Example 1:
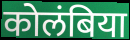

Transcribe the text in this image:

कोलंबिया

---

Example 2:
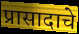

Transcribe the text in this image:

प्रासादाचे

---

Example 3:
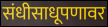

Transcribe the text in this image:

संधीसाधूपणावर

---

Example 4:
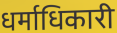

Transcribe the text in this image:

धर्माधिकारी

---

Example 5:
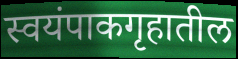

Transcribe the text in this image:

स्वयंपाकगृहातील